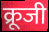
क्रूजी